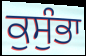
ਕੁਸੁੰਭਾ